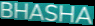
BHASHA